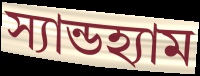
স্যান্ডহ্যাম